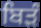
ਬਿੜੰ